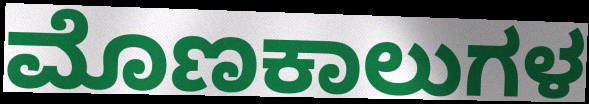
ಮೊಣಕಾಲುಗಳ